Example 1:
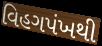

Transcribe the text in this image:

વિહગપંખથી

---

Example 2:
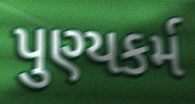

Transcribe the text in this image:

પુણ્યકર્મ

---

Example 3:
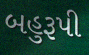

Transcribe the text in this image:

બહુરૂપી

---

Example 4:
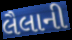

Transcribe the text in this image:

લૈલાની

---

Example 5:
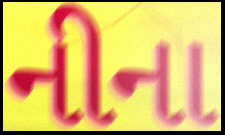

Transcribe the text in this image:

નીના